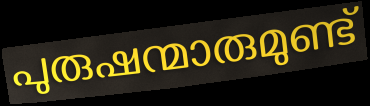
പുരുഷന്മാരുമുണ്ട്